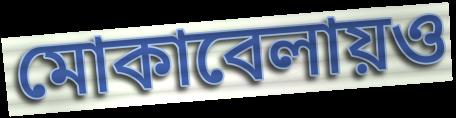
মোকাবেলায়ও